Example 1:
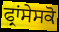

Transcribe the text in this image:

ਫ੍ਰਾਂਸੇਸਕੋ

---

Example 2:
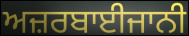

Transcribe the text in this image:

ਅਜ਼ਰਬਾਈਜਾਨੀ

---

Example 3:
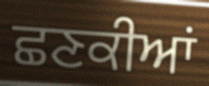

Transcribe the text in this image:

ਛਣਕੀਆਂ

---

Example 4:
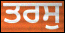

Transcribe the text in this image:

ਤਰਸੁ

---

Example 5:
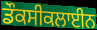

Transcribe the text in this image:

ਡੌਕਸੀਕਲਾਈਨ